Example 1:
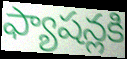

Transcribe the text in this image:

ఫ్యాషన్లకి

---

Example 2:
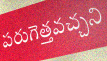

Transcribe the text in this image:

పరుగెత్తవచ్చని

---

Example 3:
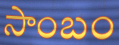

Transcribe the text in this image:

సాంబం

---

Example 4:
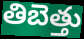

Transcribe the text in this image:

తిబెత్తు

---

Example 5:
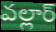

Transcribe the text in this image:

వల్లార్